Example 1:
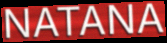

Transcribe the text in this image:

NATANA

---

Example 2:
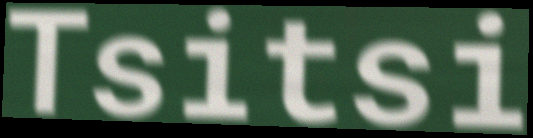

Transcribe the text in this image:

Tsitsi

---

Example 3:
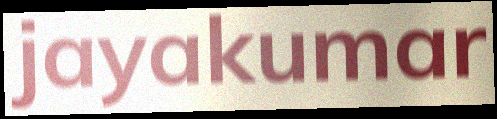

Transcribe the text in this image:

jayakumar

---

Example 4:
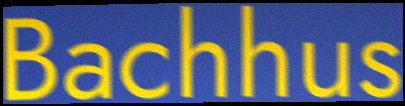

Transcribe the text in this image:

Bachhus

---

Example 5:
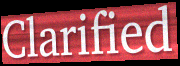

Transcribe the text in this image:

Clarified